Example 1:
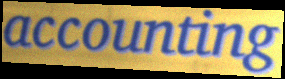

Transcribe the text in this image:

accounting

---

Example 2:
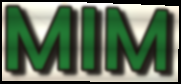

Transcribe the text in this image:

MIM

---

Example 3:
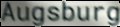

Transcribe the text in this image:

Augsburg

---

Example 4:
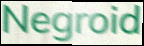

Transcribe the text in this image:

Negroid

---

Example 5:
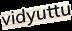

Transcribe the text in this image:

vidyuttu